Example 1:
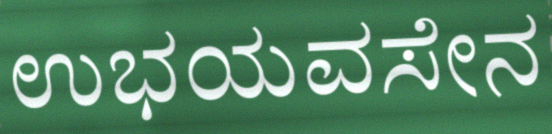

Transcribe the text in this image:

ಉಭಯವಸೇನ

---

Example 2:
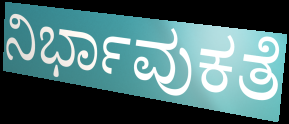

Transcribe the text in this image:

ನಿರ್ಭಾವುಕತೆ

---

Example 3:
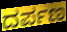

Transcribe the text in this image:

ದರ್ಪಣ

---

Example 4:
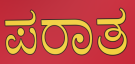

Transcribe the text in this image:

ಪರಾತ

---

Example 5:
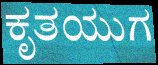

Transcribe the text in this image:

ಕೃತಯುಗ